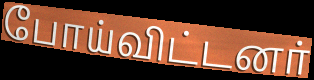
போய்விட்டனர்